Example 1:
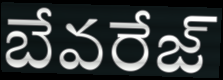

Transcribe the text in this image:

బేవరేజ్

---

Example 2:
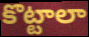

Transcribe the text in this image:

కొట్టాలా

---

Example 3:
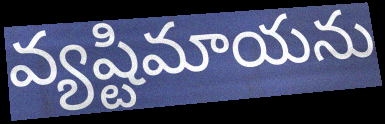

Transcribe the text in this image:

వ్యష్టిమాయను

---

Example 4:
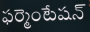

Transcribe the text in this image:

ఫర్మెంటేషన్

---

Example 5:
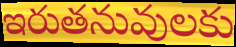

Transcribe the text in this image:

ఇరుతనువులకు